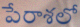
పేరాశలో